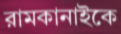
রামকানাইকে